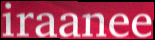
iraanee